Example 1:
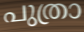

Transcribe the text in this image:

പുത്രാ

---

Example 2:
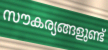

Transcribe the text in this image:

സൗകര്യങ്ങളുണ്ട്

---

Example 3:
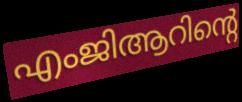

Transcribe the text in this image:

എംജിആറിന്റെ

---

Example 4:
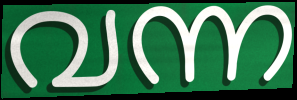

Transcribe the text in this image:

വന്ന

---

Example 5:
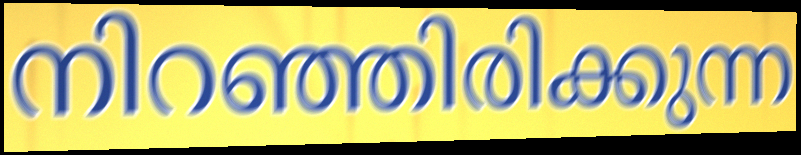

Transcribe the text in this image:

നിറഞ്ഞിരിക്കുന്ന